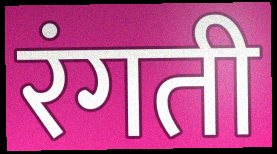
रंगती